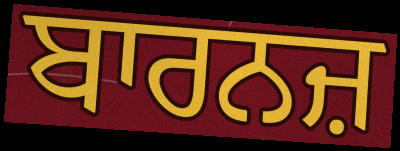
ਬਾਰਨਜ਼